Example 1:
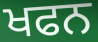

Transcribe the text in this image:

ਖਫਨ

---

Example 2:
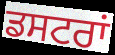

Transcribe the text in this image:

ਡਸਟਰਾਂ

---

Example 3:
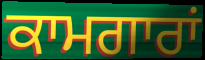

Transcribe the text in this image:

ਕਾਮਗਾਰਾਂ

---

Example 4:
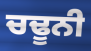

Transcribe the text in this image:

ਚਢੂਨੀ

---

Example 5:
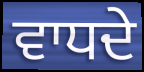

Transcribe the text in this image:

ਵਾਧਦੇ